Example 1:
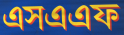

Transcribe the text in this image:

এসএএফ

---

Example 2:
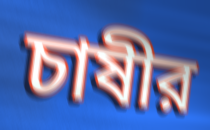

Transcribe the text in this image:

চাষীর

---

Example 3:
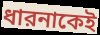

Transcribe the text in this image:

ধারনাকেই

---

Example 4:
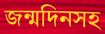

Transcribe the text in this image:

জন্মদিনসহ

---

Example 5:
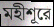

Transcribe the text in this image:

মহীশূরে